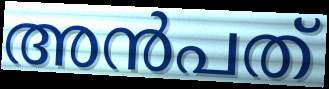
അൻപത്